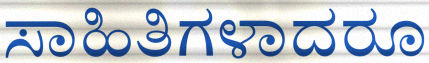
ಸಾಹಿತಿಗಳಾದರೂ